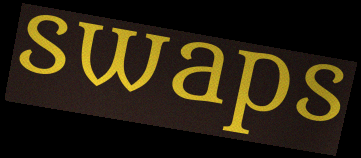
swaps